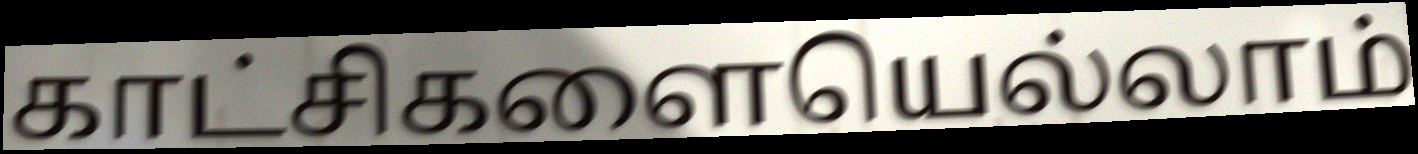
காட்சிகளையெல்லாம்